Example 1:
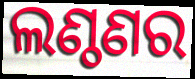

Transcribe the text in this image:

ଲଣ୍ଠଣର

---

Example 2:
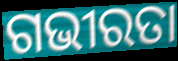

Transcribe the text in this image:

ଗଭୀରତା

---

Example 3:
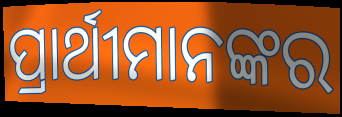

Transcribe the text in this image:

ପ୍ରାର୍ଥୀମାନଙ୍କର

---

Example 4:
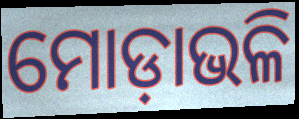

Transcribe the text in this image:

ମୋଡ଼ାଭଳି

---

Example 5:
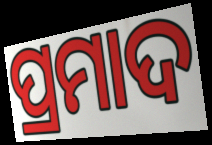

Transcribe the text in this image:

ପ୍ରମାଦ